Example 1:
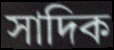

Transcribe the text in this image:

সাদিক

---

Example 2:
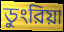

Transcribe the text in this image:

ডুংরিয়া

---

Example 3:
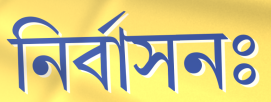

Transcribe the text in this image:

নির্বাসনঃ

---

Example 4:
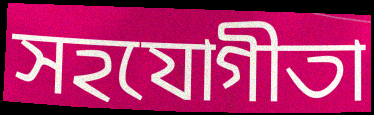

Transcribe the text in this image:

সহযোগীতা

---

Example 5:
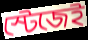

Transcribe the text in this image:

স্টেজেই